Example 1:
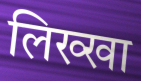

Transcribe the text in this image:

लिख्खा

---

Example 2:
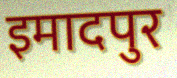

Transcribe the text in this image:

इमादपुर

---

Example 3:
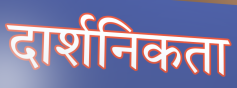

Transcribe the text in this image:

दार्शनिकता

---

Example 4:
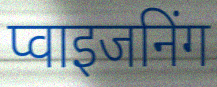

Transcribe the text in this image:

प्वाइजनिंग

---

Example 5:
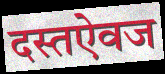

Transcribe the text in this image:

दस्तऐवज